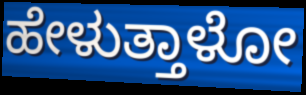
ಹೇಳುತ್ತಾಳೋ